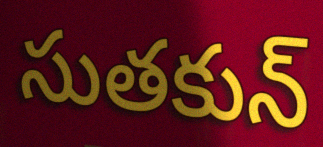
సుతకున్